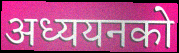
अध्ययनको